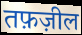
तफ़ज़ील